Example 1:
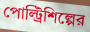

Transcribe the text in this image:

পোল্ট্রিশিল্পের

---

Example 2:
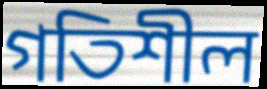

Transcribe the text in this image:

গতিশীল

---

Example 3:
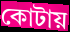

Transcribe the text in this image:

কোটায়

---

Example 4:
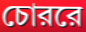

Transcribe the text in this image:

চোররে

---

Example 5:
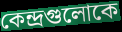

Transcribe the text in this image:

কেন্দ্রগুলোকে